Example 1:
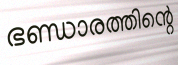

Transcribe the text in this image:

ഭണ്ഡാരത്തിന്റെ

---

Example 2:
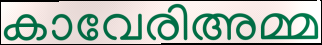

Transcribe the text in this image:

കാവേരിഅമ്മ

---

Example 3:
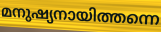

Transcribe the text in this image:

മനുഷ്യനായിത്തന്നെ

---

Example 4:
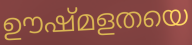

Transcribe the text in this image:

ഊഷ്മളതയെ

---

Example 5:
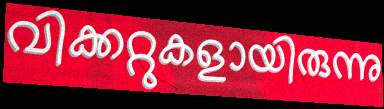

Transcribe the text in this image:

വിക്കറ്റുകളായിരുന്നു